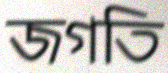
জগতি